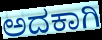
ಅದಕಾಗಿ